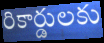
రికార్డులకు